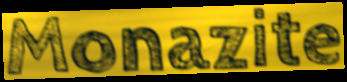
Monazite